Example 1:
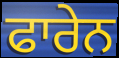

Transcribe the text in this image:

ਫਾਰੇਨ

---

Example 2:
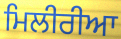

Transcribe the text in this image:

ਮਿਲੀਰੀਆ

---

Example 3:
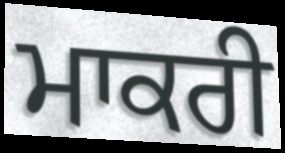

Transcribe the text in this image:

ਮਾਕਰੀ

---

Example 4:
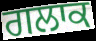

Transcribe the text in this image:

ਗਲਾਕ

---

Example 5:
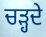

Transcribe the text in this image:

ਚਡ਼੍ਹਦੇ